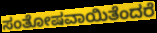
ಸಂತೋಷವಾಯಿತೆಂದರೆ